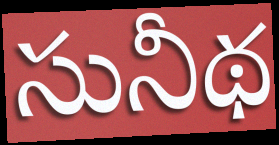
సునీథ